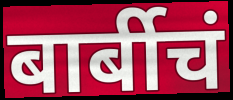
बार्बीचं